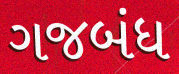
ગજબંધ